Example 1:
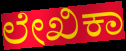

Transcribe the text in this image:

ಲೇಖಿಕಾ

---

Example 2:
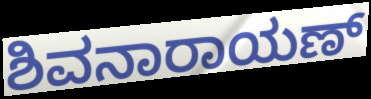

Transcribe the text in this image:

ಶಿವನಾರಾಯಣ್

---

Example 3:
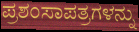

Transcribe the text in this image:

ಪ್ರಶಂಸಾಪತ್ರಗಳನ್ನು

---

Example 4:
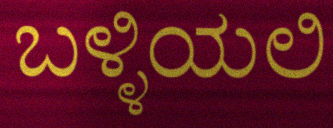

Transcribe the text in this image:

ಬಳ್ಳಿಯಲಿ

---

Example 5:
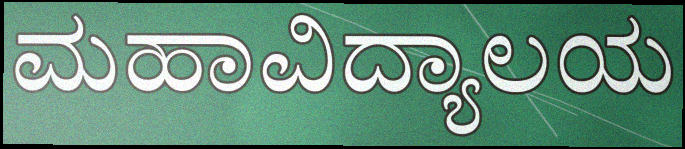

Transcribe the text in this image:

ಮಹಾವಿದ್ಯಾಲಯ